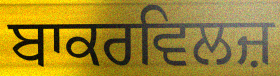
ਬਾਕਰਵਿਲਜ਼